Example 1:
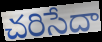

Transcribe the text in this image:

చరిసేదా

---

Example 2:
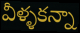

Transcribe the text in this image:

వీళ్ళకన్నా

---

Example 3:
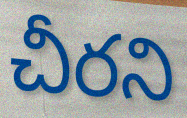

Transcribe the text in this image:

చీరని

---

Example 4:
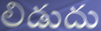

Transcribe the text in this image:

లిడుదు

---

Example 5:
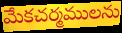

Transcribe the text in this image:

మేకచర్మములను